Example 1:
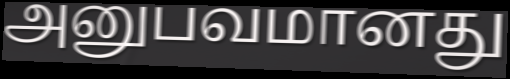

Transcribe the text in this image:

அனுபவமானது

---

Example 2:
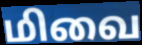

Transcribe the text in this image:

மிவை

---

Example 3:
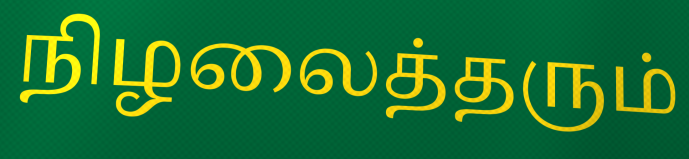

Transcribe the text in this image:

நிழலைத்தரும்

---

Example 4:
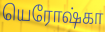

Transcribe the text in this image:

யெரோஷ்கா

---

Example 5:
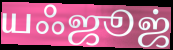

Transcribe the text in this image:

யஃஜூஜ்